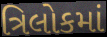
ત્રિલોકમાં